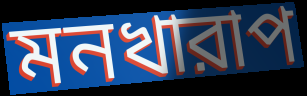
মনখারাপ